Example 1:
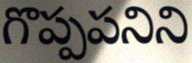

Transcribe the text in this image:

గొప్పపనిని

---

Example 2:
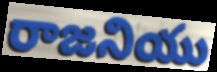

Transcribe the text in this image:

రాజనియు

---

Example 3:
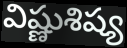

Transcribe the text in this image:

విష్ణుశిష్య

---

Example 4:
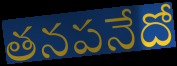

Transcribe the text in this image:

తనపనేదో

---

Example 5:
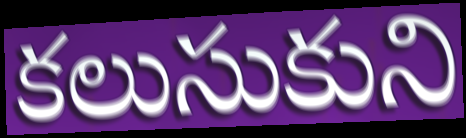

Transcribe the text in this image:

కలుసుకుని